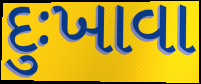
દુઃખાવા